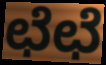
ಛೆಛೆ